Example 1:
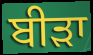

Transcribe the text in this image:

ਬੀੜਾ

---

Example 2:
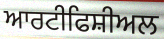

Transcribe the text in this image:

ਆਰਟੀਫਿਸ਼ੀਅਲ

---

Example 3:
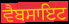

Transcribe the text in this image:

ਵੈਬਸਾਇਟ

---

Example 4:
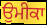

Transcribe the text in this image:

ਉਮੀਕਾ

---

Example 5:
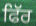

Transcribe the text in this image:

ਫਿੱਰ